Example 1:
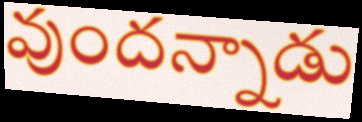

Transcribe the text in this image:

వుందన్నాడు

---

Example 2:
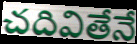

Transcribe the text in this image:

చదివితేనే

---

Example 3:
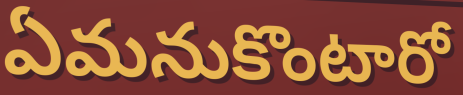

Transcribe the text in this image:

ఏమనుకొంటారో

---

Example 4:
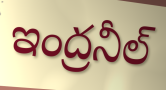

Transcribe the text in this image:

ఇంద్రనీల్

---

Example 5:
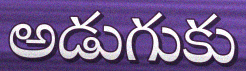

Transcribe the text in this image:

అడుగుకు